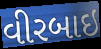
વીરબાઇ